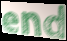
end